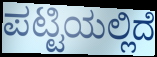
ಪಟ್ಟಿಯಲ್ಲಿದೆ